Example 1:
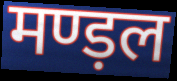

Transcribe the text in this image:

मण्ड़ल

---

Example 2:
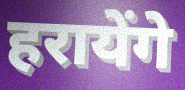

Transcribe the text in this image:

हरायेंगे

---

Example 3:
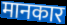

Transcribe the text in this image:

मानकार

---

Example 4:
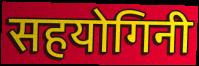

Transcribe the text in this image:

सहयोगिनी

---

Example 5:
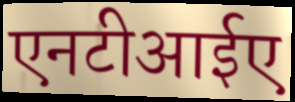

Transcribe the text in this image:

एनटीआईए